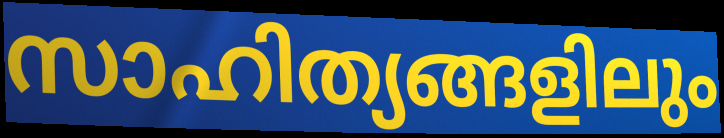
സാഹിത്യങ്ങളിലും